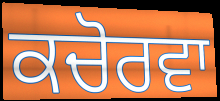
ਕਚੋਰਵਾ